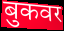
बुकवर